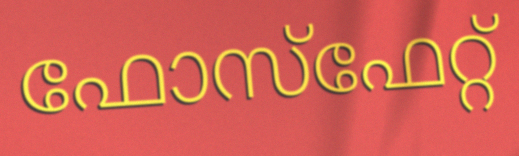
ഫോസ്ഫേറ്റ്